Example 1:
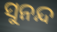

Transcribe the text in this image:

ସୁନନ୍ଦ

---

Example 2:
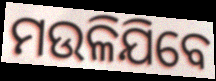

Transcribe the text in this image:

ମଉଳିଯିବେ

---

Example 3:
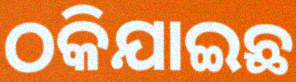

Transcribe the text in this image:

ଠକିଯାଇଛ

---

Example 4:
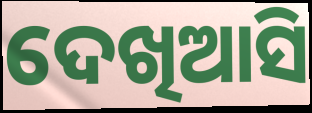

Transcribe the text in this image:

ଦେଖିଆସି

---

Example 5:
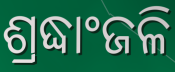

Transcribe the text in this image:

ଶ୍ରଦ୍ଧାଂଜଳି